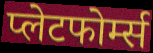
प्लेटफोर्म्स